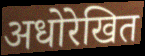
अधोरेखित